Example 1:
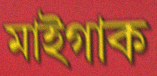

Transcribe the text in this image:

মাইগাক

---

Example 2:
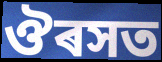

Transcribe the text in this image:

ঔৰসত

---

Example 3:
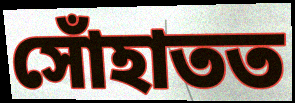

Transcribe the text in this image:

সোঁহাতত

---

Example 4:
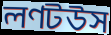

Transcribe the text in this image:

লণটউস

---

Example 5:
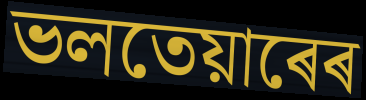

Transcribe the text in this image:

ভলতেয়াৰেৰ